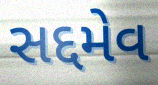
સદ્દમેવ